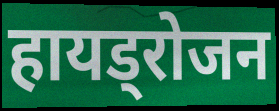
हायड्रोजन